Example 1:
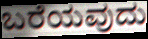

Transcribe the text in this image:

ಬರೆಯವುದು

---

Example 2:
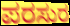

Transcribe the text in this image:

ಪರಸುರ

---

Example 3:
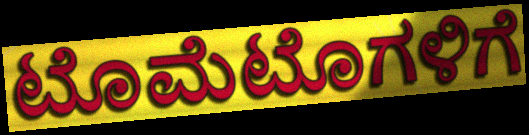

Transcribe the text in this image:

ಟೊಮೆಟೊಗಳಿಗೆ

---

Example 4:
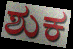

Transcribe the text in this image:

ಶುಕ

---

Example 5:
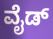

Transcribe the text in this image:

ವೈಡ್